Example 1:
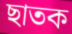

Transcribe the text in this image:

ছাতক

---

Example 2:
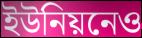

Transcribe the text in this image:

ইউনিয়নেও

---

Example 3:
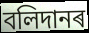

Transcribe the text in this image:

বলিদানৰ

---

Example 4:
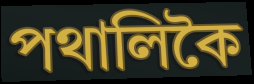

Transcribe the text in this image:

পথালিকৈ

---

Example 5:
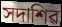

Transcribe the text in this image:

সদাশিৱ